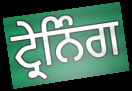
ਟ੍ਰੇਨਿੰਗ